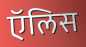
ऍलिस